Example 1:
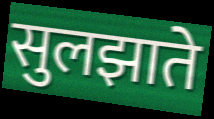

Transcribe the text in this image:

सुलझाते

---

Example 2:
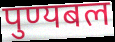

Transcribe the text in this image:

पुण्यबल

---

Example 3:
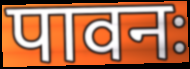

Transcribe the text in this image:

पावनः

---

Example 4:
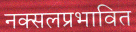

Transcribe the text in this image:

नक्सलप्रभावित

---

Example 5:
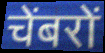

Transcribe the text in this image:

चेंबरों